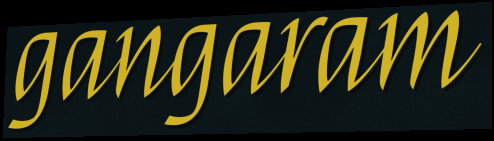
gangaram